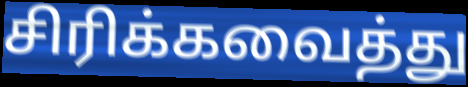
சிரிக்கவைத்து